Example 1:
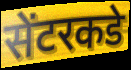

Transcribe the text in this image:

सेंटरकडे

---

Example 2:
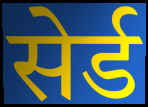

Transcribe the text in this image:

सेर्ड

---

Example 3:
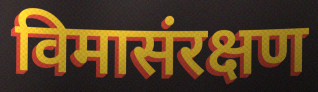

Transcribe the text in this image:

विमासंरक्षण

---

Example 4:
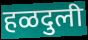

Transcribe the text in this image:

हळदुली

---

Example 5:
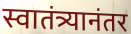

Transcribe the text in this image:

स्वातंत्र्यानंतर